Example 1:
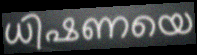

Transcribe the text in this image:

ധിഷണയെ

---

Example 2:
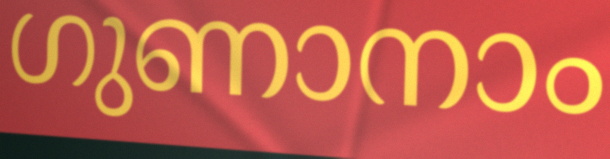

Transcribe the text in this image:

ഗുണാനാം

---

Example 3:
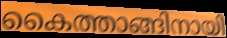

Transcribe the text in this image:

കൈത്താങ്ങിനായി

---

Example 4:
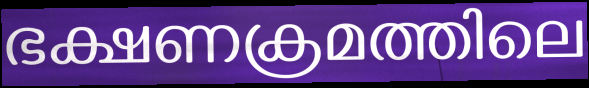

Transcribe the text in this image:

ഭക്ഷണക്രമത്തിലെ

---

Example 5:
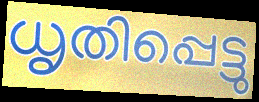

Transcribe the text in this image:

ധൃതിപ്പെട്ടു